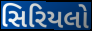
સિરિયલો